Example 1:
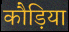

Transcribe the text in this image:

कौड़िया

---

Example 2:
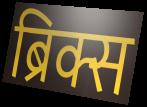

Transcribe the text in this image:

ब्रिक्स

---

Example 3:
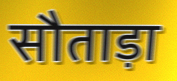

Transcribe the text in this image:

सौताड़ा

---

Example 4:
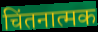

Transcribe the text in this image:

चिंतनात्मक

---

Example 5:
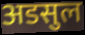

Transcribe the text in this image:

अडसुल